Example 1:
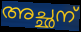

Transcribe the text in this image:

അച്ഛന്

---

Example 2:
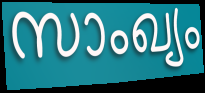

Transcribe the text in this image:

സാംഖ്യം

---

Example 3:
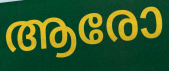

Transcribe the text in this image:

ആരോ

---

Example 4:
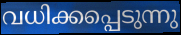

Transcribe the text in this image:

വധിക്കപ്പെടുന്നു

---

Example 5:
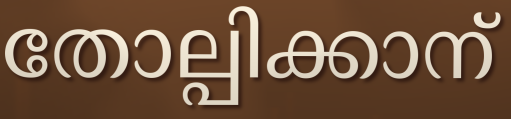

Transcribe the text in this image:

തോല്പിക്കാന്